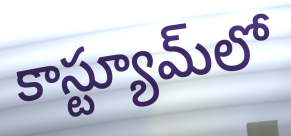
కాస్ట్యూమ్‌లో